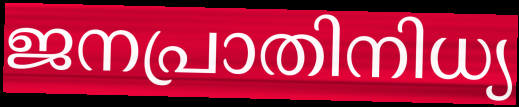
ജനപ്രാതിനിധ്യ